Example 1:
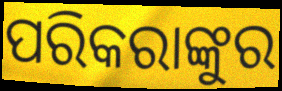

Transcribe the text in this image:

ପରିକରାଙ୍କୁର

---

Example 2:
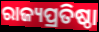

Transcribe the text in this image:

ରାଜ୍ୟପ୍ରତିଷ୍ଠା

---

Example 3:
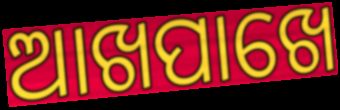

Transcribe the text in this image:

ଆଖପାଖେ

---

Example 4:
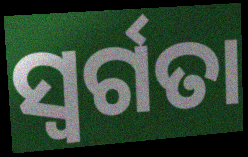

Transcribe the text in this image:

ସ୍ବର୍ଗତା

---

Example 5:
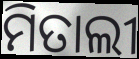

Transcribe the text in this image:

ମିତାଲୀ